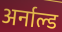
अर्नाल्ड